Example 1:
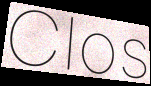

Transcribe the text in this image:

Clos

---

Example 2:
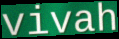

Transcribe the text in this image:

vivah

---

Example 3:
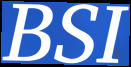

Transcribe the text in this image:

BSI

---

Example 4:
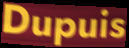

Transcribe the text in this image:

Dupuis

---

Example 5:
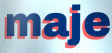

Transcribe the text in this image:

maje